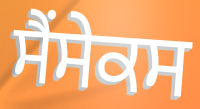
ਸੈਂਸੇਕਸ